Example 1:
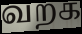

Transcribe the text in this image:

வறக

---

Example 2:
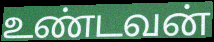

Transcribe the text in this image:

உண்டவன்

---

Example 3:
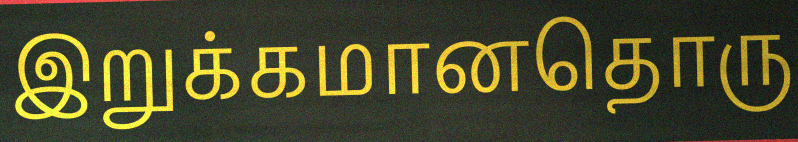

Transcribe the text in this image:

இறுக்கமானதொரு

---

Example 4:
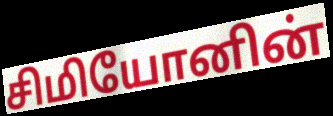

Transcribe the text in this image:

சிமியோனின்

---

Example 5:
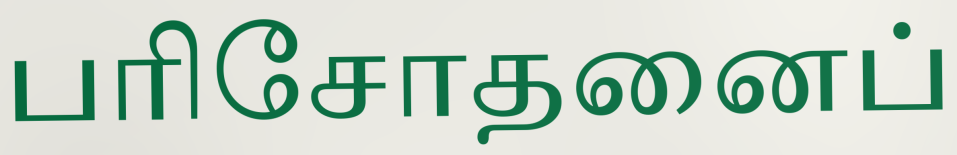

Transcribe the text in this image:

பரிசோதனைப்